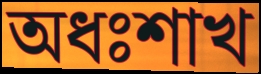
অধঃশাখ